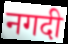
नगदी